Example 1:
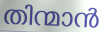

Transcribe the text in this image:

തിന്മാൻ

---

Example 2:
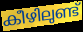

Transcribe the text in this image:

കീഴിലുണ്ട്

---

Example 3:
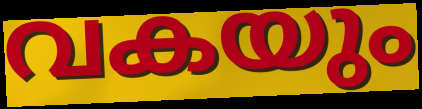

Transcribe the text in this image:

വകയും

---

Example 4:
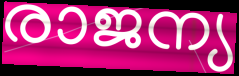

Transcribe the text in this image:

രാജന്യ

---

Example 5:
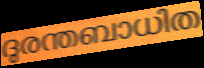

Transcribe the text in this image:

ദുരന്തബാധിത